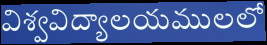
విశ్వవిద్యాలయములలో